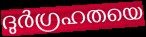
ദുർഗ്രഹതയെ